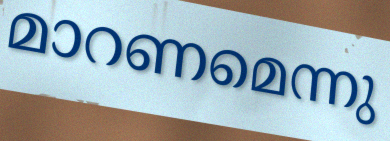
മാറണമെന്നു